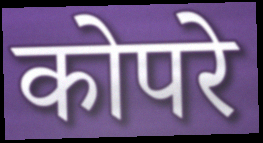
कोपरे